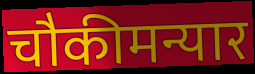
चौकीमन्यार